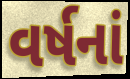
વર્ષનાં